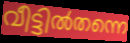
വീട്ടിൽതന്നെ